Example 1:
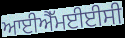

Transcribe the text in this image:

ਆਈਐੱਮਈਈਸੀ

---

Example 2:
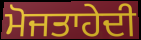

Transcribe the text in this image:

ਮੋਜਤਾਹੇਦੀ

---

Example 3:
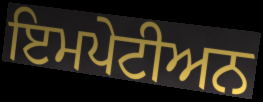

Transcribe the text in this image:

ਇਮਪੇਟੀਅਨ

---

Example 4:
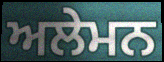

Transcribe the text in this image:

ਅਲੇਮਨ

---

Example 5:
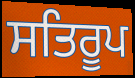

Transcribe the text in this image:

ਸਤਿਰੂਪ